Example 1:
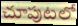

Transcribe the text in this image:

చూపుటలో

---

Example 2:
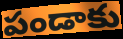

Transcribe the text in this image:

పండాకు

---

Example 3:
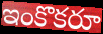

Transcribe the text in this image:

ఇంకొకరూ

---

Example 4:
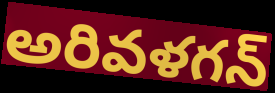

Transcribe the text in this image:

అరివళగన్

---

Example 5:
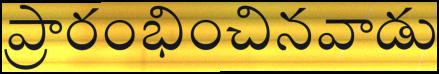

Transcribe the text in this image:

ప్రారంభించినవాడు